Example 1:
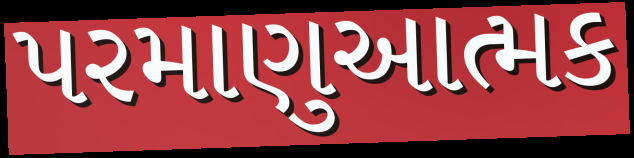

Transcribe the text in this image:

પરમાણુઆત્મક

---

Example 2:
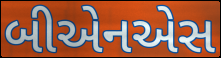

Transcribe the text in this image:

બીએનએસ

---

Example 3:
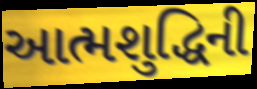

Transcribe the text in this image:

આત્મશુદ્ધિની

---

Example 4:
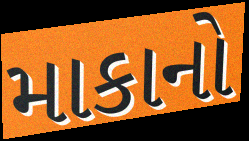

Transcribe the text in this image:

માકાનો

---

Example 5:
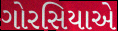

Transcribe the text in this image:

ગોરસિયાએ